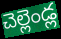
చెల్లెండ్ల